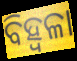
ବିହ୍ଵଳା